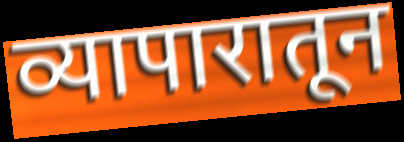
व्यापारातून